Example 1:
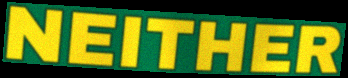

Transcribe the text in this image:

NEITHER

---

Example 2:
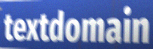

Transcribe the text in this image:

textdomain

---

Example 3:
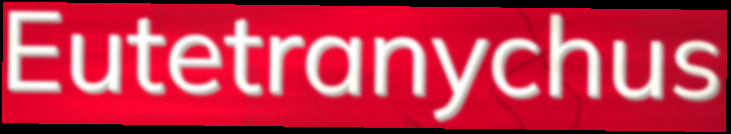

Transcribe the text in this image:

Eutetranychus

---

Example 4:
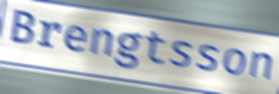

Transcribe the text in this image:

Brengtsson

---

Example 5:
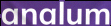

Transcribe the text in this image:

analum